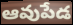
ఆవుపేడ